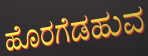
ಹೊರಗೆಡಹುವ